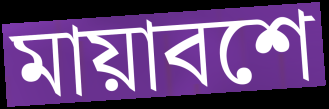
মায়াবশে